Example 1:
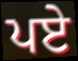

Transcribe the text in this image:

ਪਏ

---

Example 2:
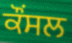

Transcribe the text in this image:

ਕੌਂਸਲ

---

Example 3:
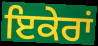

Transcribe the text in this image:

ਇਕੇਰਾਂ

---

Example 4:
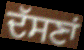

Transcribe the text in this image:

ਦੱਸਣਾਂ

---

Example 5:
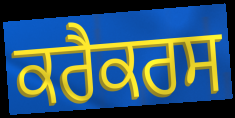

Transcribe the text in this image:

ਕਰੈਕਰਸ